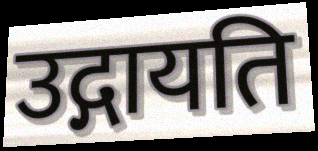
उद्गायति